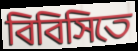
বিবিসিতে